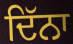
ਦਿੱਨਾ